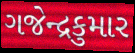
ગજેન્દ્રકુમાર